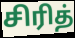
சிரித்